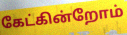
கேட்கின்றோம்